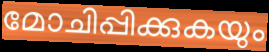
മോചിപ്പിക്കുകയും